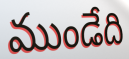
ముండేది